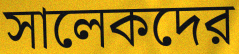
সালেকদের